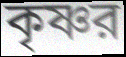
কৃষ্ণর